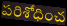
పరిశోధించ